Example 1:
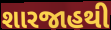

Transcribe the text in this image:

શારજાહથી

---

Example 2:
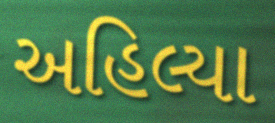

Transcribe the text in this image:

અહિલ્યા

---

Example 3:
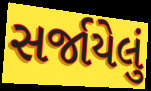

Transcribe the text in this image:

સર્જાયેલું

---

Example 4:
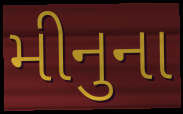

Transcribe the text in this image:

મીનુના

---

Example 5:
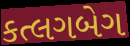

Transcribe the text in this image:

કત્લગબેગ